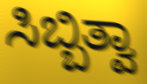
ಸಿಬ್ಬಿತ್ವಾ